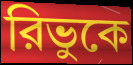
রিভুকে